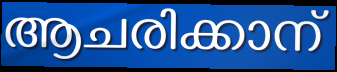
ആചരിക്കാന്